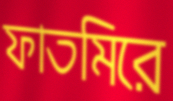
ফাতমিরে